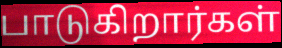
பாடுகிறார்கள்